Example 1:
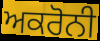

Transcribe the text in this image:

ਅਕਰੋਨੀ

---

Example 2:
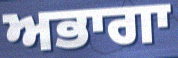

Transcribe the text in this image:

ਅਭਾਗਾ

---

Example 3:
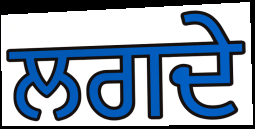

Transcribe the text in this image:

ਲਗਦੇ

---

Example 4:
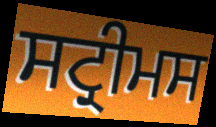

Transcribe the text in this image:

ਸਟ੍ਰੀਮਸ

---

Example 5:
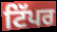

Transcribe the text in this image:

ਟਿੱਪਰ